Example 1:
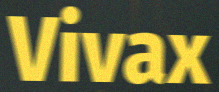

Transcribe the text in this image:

Vivax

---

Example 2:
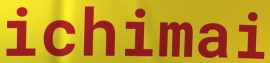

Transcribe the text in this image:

ichimai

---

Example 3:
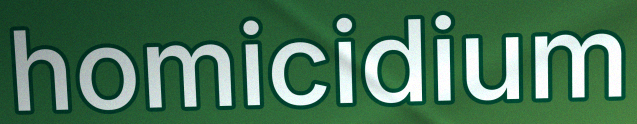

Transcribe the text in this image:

homicidium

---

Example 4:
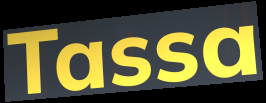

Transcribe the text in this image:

Tassa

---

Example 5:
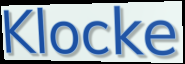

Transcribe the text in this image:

Klocke